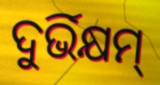
ଦୁର୍ଭିକ୍ଷମ୍